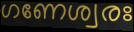
ഗണേശ്വരഃ